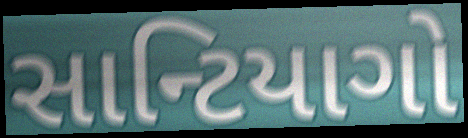
સાન્ટિયાગો